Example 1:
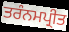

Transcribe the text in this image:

ਤਰੰਨਮਪ੍ਰੀਤ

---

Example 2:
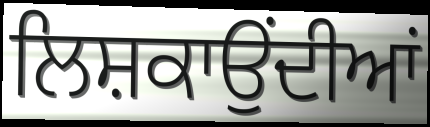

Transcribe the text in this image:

ਲਿਸ਼ਕਾਉਂਦੀਆਂ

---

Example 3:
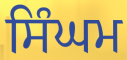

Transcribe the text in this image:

ਸਿੰਘਮ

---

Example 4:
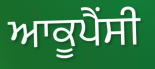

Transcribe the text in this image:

ਆਕੂਪੈਂਸੀ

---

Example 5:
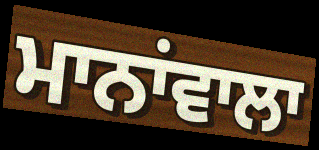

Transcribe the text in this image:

ਮਾਨਾਂਵਾਲਾ